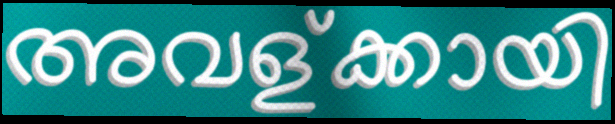
അവള്ക്കായി